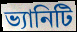
ভ্যানিটি